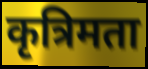
कृत्रिमता